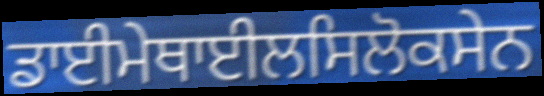
ਡਾਈਮੇਥਾਈਲਸਿਲੋਕਸੇਨ